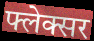
फ्लेक्सर